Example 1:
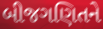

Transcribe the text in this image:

બીજગણિતને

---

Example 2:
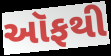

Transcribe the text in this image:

ઑફથી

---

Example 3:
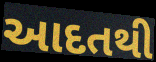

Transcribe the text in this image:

આદતથી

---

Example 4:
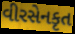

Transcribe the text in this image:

વીરસેનકૃત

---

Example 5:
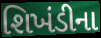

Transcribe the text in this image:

શિખંડીના